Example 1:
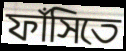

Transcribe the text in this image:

ফাঁসিতে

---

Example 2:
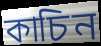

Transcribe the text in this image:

কাচিন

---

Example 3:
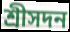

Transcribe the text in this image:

শ্রীসদন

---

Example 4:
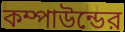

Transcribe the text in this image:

কম্পাউন্ডের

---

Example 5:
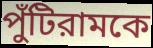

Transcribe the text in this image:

পুঁটিরামকে